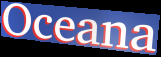
Oceana